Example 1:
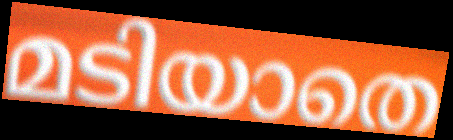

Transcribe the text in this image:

മടിയാതെ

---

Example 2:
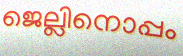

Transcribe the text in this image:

ജെല്ലിനൊപ്പം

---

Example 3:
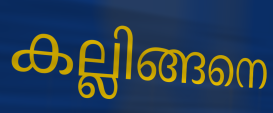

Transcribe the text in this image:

കല്ലിങ്ങനെ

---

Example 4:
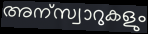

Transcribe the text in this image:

അന്സ്വാറുകളും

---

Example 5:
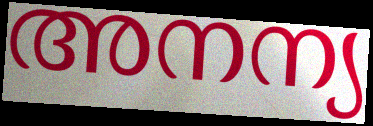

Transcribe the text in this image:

അനന്യ